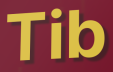
Tib